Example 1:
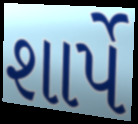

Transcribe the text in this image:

શાર્પે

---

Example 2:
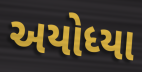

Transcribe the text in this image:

અયોધ્યા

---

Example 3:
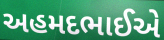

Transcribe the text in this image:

અહમદભાઈએ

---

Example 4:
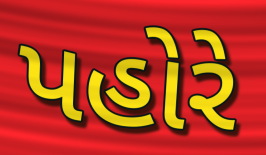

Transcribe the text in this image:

પહોરે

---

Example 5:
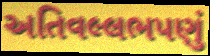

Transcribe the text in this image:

અતિવલ્લભપણું